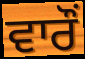
ਵਾਰੌਂ